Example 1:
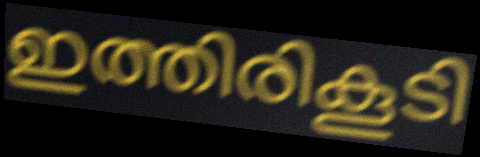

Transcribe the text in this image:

ഇത്തിരികൂടി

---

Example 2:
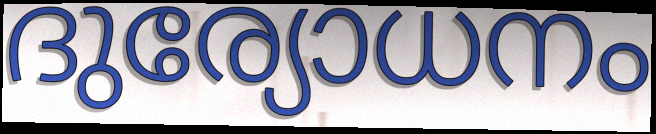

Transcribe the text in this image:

ദുര്യോധനം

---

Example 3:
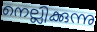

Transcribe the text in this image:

നെല്ലിക്കുന്നു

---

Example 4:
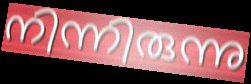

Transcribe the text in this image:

നിന്നിരുന്നു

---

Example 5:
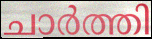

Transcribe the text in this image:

ചാർത്തി